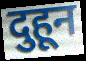
दुहून